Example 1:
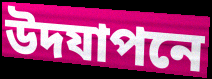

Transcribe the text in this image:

উদযাপনে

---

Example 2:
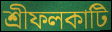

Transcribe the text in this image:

শ্রীফলকাটি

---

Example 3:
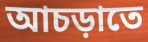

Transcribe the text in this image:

আচড়াতে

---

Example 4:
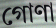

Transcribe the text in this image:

গোণা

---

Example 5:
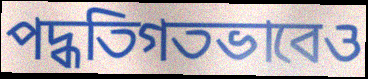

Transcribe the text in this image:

পদ্ধতিগতভাবেও